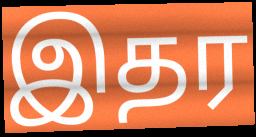
இதர